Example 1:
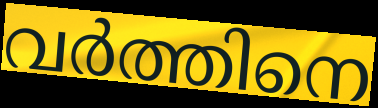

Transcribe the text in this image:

വർത്തിനെ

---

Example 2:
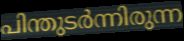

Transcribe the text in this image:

പിന്തുടർന്നിരുന്ന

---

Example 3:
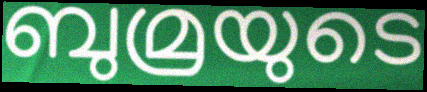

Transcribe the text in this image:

ബുമ്രയുടെ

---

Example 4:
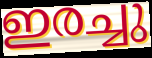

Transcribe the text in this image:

ഇരച്ചു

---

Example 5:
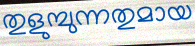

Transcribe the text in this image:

തുളുമ്പുന്നതുമായ